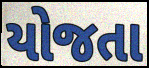
યોજતા